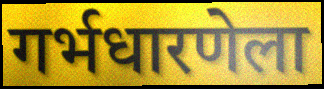
गर्भधारणेला